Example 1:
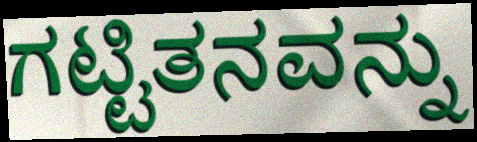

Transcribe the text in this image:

ಗಟ್ಟಿತನವನ್ನು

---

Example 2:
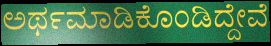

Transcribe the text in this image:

ಅರ್ಥಮಾಡಿಕೊಂಡಿದ್ದೇವೆ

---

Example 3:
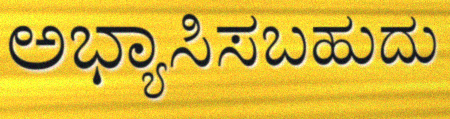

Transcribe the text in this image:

ಅಭ್ಯಾಸಿಸಬಹುದು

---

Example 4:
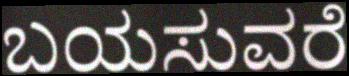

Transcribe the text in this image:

ಬಯಸುವರೆ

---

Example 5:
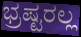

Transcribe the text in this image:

ಭ್ರಷ್ಟರಲ್ಲ